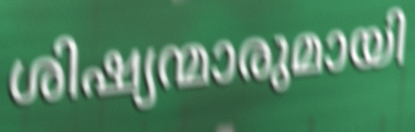
ശിഷ്യന്മാരുമായി